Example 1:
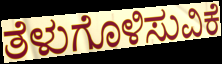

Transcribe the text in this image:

ತೆಳುಗೊಳಿಸುವಿಕೆ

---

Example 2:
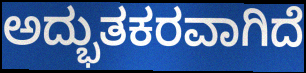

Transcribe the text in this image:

ಅದ್ಭುತಕರವಾಗಿದೆ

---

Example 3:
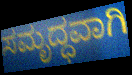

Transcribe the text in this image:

ಸಮೃದ್ಧವಾಗಿ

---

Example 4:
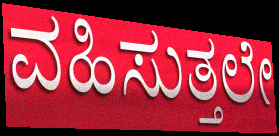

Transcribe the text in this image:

ವಹಿಸುತ್ತಲೇ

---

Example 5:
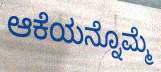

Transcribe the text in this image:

ಆಕೆಯನ್ನೊಮ್ಮೆ